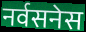
नर्वसनेस